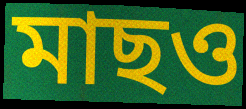
মাছও